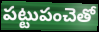
పట్టుపంచెతో